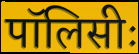
पॉलिसीः